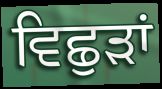
ਵਿਛੁੜਾਂ